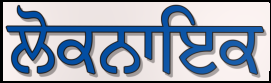
ਲੋਕਨਾਇਕ